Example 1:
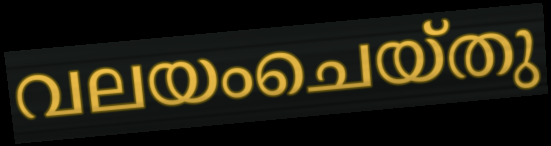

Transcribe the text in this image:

വലയംചെയ്തു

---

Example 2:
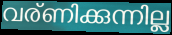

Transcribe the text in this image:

വര്ണിക്കുന്നില്ല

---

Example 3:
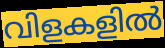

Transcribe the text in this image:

വിളകളിൽ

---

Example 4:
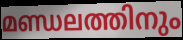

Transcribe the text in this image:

മണ്ഡലത്തിനും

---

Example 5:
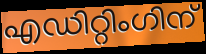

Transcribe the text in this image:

എഡിറ്റിംഗിന്